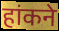
हांकने